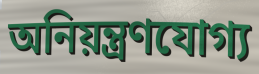
অনিয়ন্ত্রণযোগ্য